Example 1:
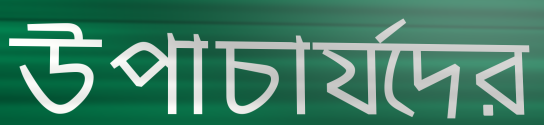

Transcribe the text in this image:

উপাচার্যদের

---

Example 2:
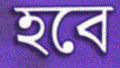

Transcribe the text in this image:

হবে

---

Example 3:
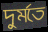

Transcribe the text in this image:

দুর্মতে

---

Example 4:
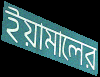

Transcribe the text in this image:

ইয়ামালের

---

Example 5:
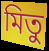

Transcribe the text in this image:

মিতু